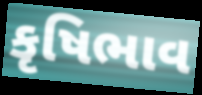
કૃષિભાવ